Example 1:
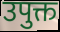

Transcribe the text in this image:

उपुक्त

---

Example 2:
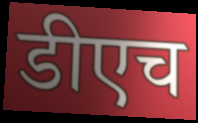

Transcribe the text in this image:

डीएच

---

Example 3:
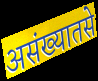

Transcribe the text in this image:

असंख्यातसे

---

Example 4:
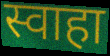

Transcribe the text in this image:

स्वाहा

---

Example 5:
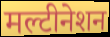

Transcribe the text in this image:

मल्टीनेशन